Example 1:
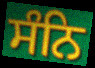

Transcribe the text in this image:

ਸੰਨਿ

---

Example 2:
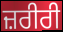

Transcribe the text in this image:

ਜ਼ਰੀਰੀ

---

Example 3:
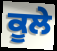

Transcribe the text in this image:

ਕੂਲੇ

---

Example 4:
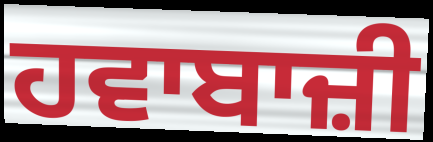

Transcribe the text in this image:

ਹਵਾਬਾਜ਼ੀ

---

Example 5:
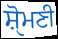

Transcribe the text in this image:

ਸ਼ੑੋਮਣੀ